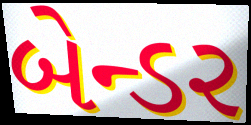
બેન્ડર